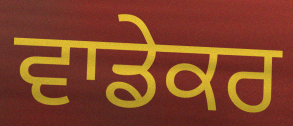
ਵਾਡੇਕਰ